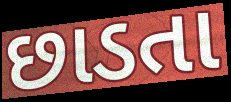
છાડતા